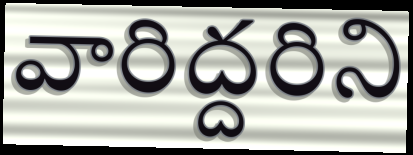
వారిద్దరిని